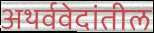
अथर्ववेदांतील